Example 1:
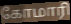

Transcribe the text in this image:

கோமாரி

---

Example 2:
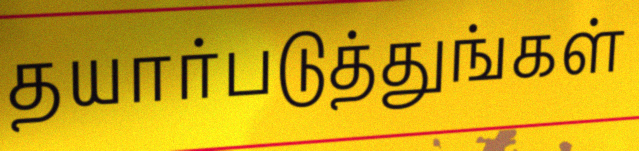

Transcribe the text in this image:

தயார்படுத்துங்கள்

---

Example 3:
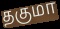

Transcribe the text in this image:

தகுமா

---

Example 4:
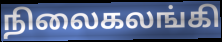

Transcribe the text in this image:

நிலைகலங்கி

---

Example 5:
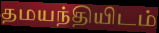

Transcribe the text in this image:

தமயந்தியிடம்